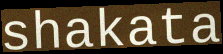
shakata